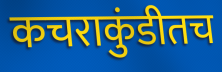
कचराकुंडीतच